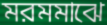
মরমমাঝে